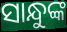
ସାନ୍ଧୁଙ୍କ